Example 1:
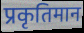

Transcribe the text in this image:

प्रकृतिमान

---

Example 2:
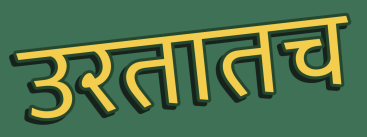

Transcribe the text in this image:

उरतातच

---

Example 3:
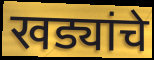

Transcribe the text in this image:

खड्यांचे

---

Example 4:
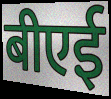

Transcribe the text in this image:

बीएई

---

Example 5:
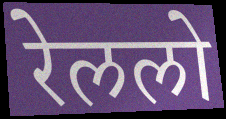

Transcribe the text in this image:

रेललो